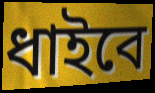
ধাইবে